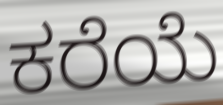
ಕರೆಯೆ